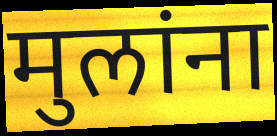
मुलांना